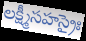
లక్ష్మీసహస్రైః